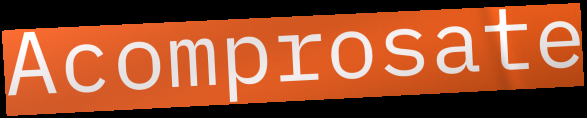
Acomprosate